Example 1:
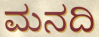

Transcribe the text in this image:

ಮನದಿ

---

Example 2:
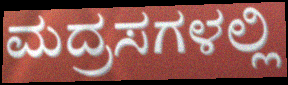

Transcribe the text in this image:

ಮದ್ರಸಗಳಲ್ಲಿ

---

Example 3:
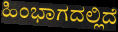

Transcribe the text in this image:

ಹಿಂಭಾಗದಲ್ಲಿದೆ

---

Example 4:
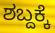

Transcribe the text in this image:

ಶಬ್ದಕ್ಕೆ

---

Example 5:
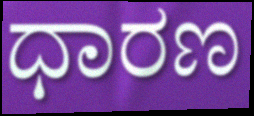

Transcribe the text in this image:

ಧಾರಣ